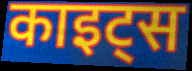
काइट्स